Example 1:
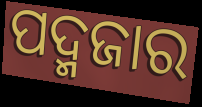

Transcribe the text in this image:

ପଦ୍ମଜାର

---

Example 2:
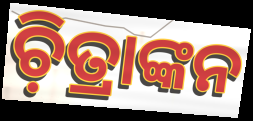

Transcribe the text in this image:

ଚ଼ିତ୍ରାଙ୍କନ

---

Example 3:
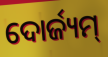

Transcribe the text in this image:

ଦୋର୍ଜ୍ୟମ୍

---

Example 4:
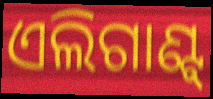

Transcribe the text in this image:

ଏଲିଗାଣ୍ଟ୍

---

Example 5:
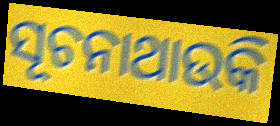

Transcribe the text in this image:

ସୂଚନାଥାଉକି